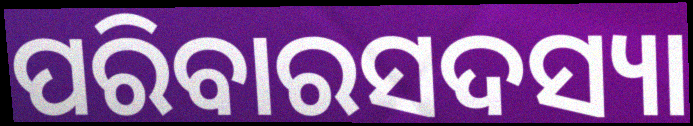
ପରିବାରସଦସ୍ୟା